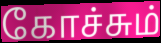
கோச்சும்